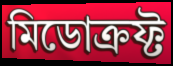
মিডোক্রফ্ট